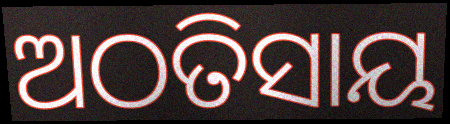
ଅଠତିସାୟ